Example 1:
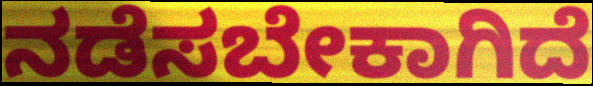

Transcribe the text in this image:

ನಡೆಸಬೇಕಾಗಿದೆ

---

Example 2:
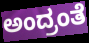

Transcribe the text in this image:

ಅಂದ್ರಂತೆ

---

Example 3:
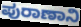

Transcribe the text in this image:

ಪುರಾಣಾನಿ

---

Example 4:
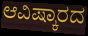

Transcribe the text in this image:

ಆವಿಷ್ಕಾರದ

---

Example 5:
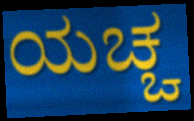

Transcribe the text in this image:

ಯಚ್ಚ